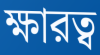
ক্ষারত্ব